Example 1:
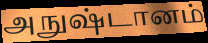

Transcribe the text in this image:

அநுஷ்டானம்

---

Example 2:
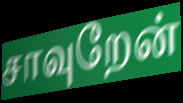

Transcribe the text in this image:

சாவுறேன்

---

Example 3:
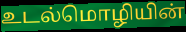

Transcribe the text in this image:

உடல்மொழியின்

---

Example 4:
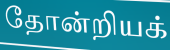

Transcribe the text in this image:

தோன்றியக்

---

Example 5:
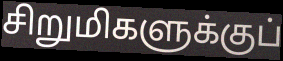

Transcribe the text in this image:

சிறுமிகளுக்குப்